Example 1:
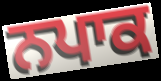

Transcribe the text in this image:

ਨਪਾਕ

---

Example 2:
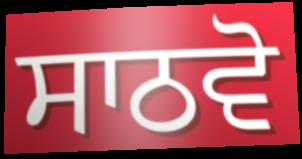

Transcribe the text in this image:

ਸਾਠਵੋ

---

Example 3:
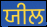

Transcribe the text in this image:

ਯੀਲ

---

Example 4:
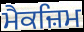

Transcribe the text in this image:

ਮੈਕਜ਼ਿਮ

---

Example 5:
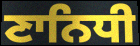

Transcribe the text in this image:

ਣਾਨਿਧੀ